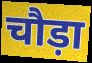
चौड़ा